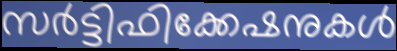
സർട്ടിഫിക്കേഷനുകൾ